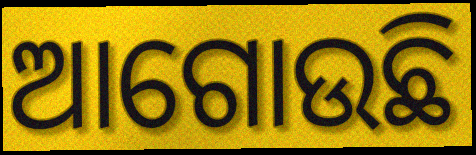
ଆଗୋଉଛି